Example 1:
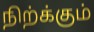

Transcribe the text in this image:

நிற்க்கும்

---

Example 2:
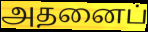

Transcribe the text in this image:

அதனைப்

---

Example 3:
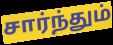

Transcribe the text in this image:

சார்ந்தும்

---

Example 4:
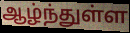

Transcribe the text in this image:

ஆழ்ந்துள்ள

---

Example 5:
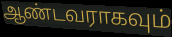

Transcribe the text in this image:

ஆண்டவராகவும்